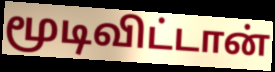
மூடிவிட்டான்